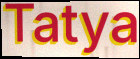
Tatya